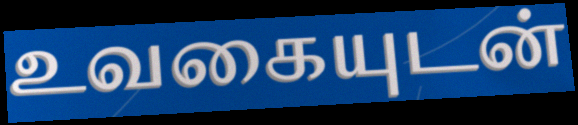
உவகையுடன்